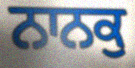
ਨਾਨਕੁ